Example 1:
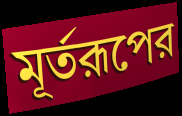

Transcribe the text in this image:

মূর্তরূপের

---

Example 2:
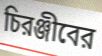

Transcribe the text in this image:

চিরঞ্জীবের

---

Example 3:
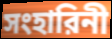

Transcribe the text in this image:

সংহারিনী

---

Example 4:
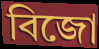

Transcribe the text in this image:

বিজো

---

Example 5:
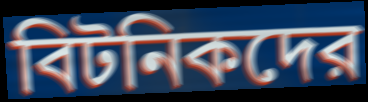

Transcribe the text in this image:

বিটনিকদের